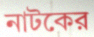
নাটকের